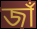
জাঁ